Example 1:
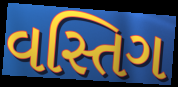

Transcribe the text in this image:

વસ્તિગ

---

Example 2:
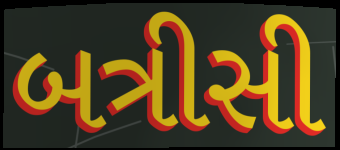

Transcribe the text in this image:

બત્રીસી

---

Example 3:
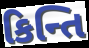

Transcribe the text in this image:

કિન્તિ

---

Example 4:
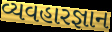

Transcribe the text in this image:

વ્યવહારજ્ઞાન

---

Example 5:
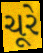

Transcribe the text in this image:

ચૂરે